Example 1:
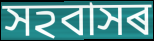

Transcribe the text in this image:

সহবাসৰ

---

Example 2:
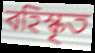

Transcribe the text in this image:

বহিস্কৃত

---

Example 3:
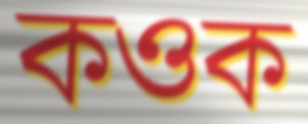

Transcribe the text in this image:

কওক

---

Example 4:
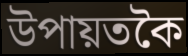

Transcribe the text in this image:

উপায়তকৈ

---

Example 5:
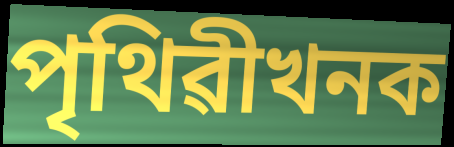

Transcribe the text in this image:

পৃথিৱীখনক